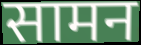
सामन